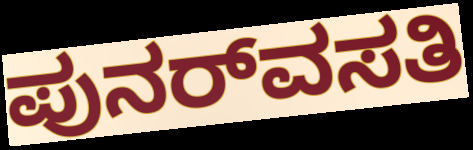
ಪುನರ್‌ವಸತಿ